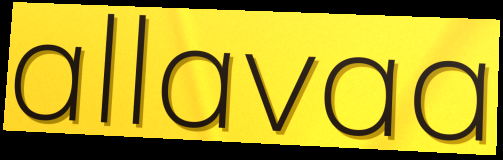
allavaa